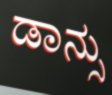
ಡಾನ್ಸು